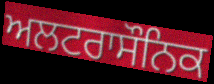
ਅਲਟਰਾਸੌਨਿਕ